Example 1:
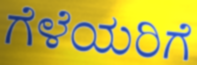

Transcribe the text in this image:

ಗೆಳೆಯರಿಗೆ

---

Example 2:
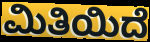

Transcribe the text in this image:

ಮಿತಿಯಿದೆ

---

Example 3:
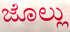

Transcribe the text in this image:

ಜೊಲ್ಲು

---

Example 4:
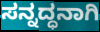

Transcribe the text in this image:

ಸನ್ನದ್ಧನಾಗಿ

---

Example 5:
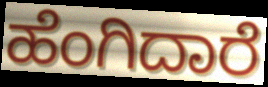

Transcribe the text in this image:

ಹೆಂಗಿದಾರೆ